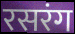
रसरंग